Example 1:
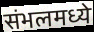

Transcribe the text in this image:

संभलमध्ये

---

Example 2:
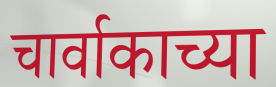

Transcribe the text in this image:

चार्वाकाच्या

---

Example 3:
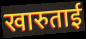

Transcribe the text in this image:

खारुताई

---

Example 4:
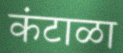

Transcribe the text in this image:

कंटाळा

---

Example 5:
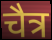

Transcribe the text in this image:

चैत्र